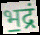
भ॒द्रं